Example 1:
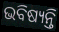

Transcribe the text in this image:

ଭବିଷ୍ୟନ୍ତି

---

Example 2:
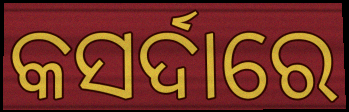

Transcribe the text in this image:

କସର୍ଦାରେ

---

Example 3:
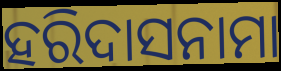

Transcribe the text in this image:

ହରିଦାସନାମା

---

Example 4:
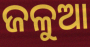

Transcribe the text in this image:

ଜଳୁଆ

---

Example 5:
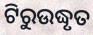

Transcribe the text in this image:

ଟିରୁଉଦ୍ଧୃତ